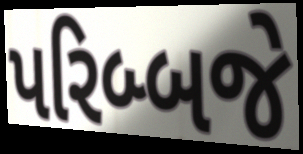
પરિબ્બજે